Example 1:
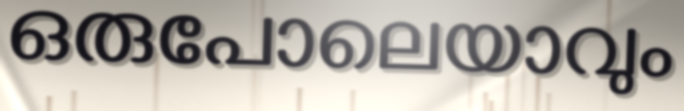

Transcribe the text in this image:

ഒരുപോലെയാവും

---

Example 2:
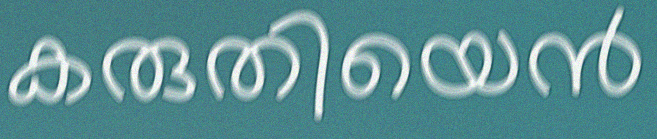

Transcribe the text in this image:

കരുതിയെൻ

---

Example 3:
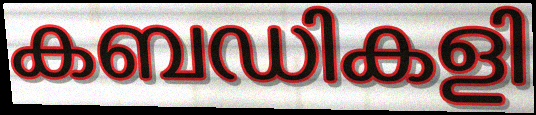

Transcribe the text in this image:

കബഡികളി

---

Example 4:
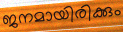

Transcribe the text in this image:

ജനമായിരിക്കും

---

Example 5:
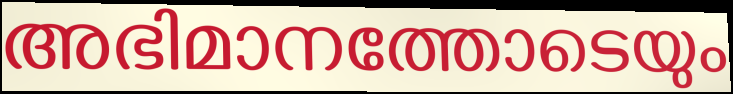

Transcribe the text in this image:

അഭിമാനത്തോടെയും